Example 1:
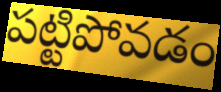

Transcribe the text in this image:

పట్టిపోవడం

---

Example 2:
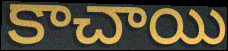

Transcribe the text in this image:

కాచాయి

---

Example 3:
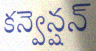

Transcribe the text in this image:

కన్వెన్షన్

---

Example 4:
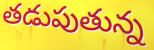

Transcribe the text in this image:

తడుపుతున్న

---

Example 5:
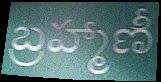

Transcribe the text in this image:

బ్రహ్మాణీ